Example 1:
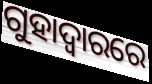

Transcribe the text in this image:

ଗୁହାଦ୍ଵାରରେ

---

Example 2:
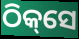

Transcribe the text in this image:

ଠିକ୍‌ସେ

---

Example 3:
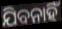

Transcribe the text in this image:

ଯିବନାହିଁ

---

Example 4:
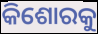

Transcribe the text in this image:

କିଶୋରକୁ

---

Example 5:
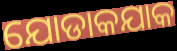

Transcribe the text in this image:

ଯୋଡାକଯାକ